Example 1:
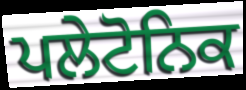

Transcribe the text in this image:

ਪਲੇਟੋਨਿਕ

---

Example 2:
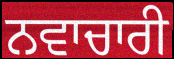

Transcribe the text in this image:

ਨਵਾਚਾਰੀ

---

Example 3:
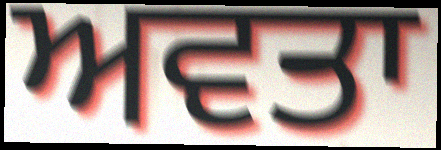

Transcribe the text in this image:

ਅਵਤਾ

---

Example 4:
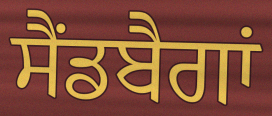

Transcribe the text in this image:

ਸੈਂਡਬੈਗਾਂ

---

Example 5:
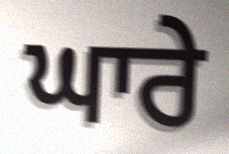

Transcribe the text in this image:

ਘਾਰੇ